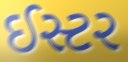
ઈસ્ટર